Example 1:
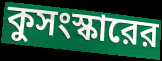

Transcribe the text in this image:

কুসংস্কারের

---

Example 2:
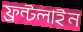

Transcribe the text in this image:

ফ্রন্টলাইন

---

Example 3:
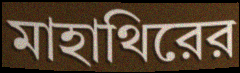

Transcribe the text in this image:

মাহাথিরের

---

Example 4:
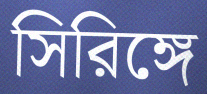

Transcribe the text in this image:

সিরিঙ্গে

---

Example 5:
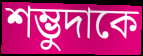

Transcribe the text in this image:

শম্ভুদাকে